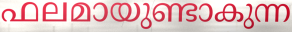
ഫലമായുണ്ടാകുന്ന